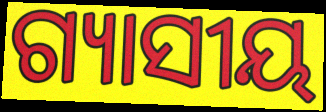
ଗ୍ୟାସୀୟ